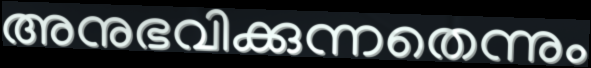
അനുഭവിക്കുന്നതെന്നും